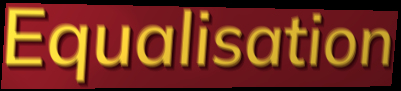
Equalisation